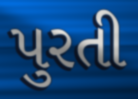
પુરતી